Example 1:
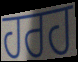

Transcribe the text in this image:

ਹਰਹ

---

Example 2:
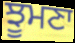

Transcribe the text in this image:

ਝੂਮਣਾ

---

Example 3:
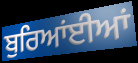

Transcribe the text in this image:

ਬੁਰਿਆਂਈਆਂ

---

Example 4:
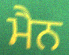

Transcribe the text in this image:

ਮੈਨ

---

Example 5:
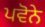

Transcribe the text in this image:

ਪਵੋਨੇ